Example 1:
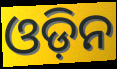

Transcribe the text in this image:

ଓଡ଼ିନ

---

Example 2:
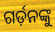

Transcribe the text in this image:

ଗର୍ଡ଼ନଙ୍କୁ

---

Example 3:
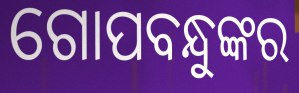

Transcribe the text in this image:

ଗୋପବନ୍ଧୁଙ୍କର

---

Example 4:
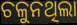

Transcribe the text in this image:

ଚଳୁନଥିଲା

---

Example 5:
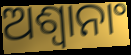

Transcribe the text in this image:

ଅଶ୍ଵାନାଂ